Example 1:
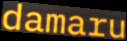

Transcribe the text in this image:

damaru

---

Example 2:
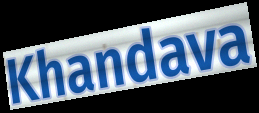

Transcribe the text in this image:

Khandava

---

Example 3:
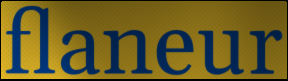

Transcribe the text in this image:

flaneur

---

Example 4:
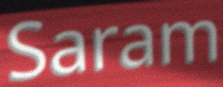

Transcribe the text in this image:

Saram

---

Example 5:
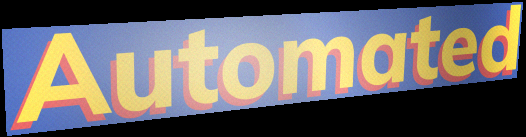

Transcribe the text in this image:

Automated